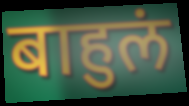
बाहुलं